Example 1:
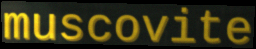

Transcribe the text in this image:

muscovite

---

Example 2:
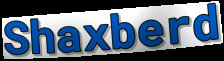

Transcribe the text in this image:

Shaxberd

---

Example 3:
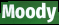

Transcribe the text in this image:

Moody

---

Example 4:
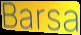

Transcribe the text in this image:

Barsa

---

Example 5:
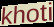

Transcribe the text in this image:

khoti